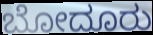
ಬೋದೂರು